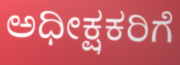
ಅಧೀಕ್ಷಕರಿಗೆ